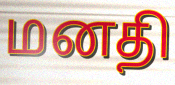
மனதி